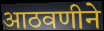
आठवणीने